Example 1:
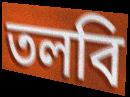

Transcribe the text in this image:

তলবি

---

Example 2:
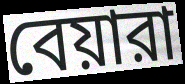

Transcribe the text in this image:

বেয়ারা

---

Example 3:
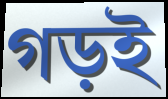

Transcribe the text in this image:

গড়ই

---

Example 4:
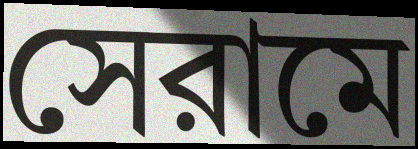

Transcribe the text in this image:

সেরামে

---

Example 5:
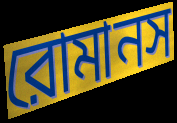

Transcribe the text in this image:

রোমানস